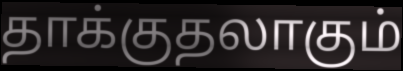
தாக்குதலாகும்